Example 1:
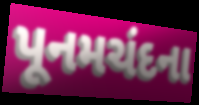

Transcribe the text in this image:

પૂનમચંદના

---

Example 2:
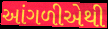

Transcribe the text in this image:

આંગળીએથી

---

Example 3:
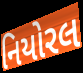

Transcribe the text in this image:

નિયોરલ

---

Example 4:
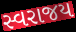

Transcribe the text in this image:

સ્વરાજય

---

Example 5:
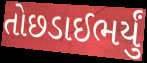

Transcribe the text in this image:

તોછડાઈભર્યું